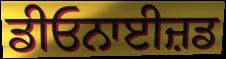
ਡੀਓਨਾਈਜ਼ਡ